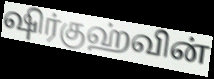
ஷிர்குஹ்வின்